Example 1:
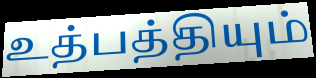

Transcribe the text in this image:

உத்பத்தியும்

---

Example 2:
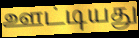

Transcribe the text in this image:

ஊட்டியது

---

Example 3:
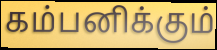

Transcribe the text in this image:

கம்பனிக்கும்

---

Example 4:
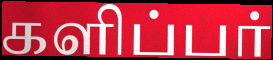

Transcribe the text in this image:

களிப்பர்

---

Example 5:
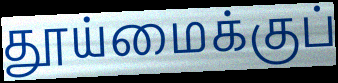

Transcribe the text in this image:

தூய்மைக்குப்